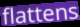
flattens